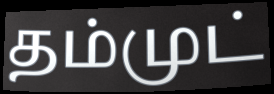
தம்முட்